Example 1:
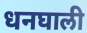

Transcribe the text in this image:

धनघाली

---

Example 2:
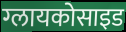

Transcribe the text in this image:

ग्लायकोसाइड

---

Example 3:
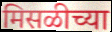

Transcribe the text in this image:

मिसळीच्या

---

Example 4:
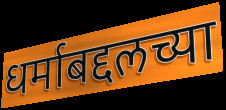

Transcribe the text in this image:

धर्माबद्दलच्या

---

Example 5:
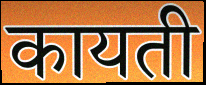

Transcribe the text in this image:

कायती